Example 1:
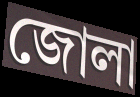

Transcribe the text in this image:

জোলা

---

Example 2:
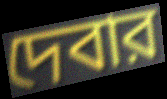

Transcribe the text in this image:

দেবার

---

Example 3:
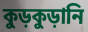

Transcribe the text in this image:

কুড়কুড়ানি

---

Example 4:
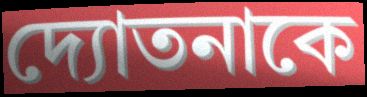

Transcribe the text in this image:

দ্যোতনাকে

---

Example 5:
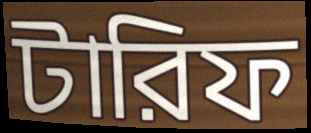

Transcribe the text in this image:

টারিফ